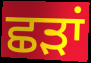
ਛੜਾਂ